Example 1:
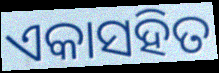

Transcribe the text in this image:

ଏକାସହିତ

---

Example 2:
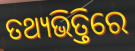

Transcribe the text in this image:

ତଥ୍ୟଭିତ୍ତିରେ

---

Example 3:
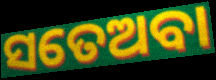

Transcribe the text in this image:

ସତେଅବା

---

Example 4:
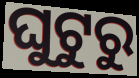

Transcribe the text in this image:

ଘୁଟୁରୁ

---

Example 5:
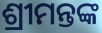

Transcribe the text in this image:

ଶ୍ରୀମନ୍ତଙ୍କ